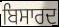
ਬਿਸਾਰਦ